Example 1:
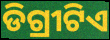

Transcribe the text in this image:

ଡିଗ୍ରୀଟିଏ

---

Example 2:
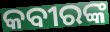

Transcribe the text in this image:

କବୀରଙ୍କ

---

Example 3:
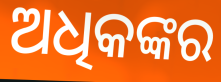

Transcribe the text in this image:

ଅଧିକଙ୍କର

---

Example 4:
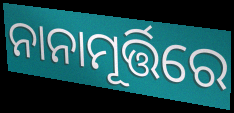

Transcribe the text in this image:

ନାନାମୂର୍ତ୍ତିରେ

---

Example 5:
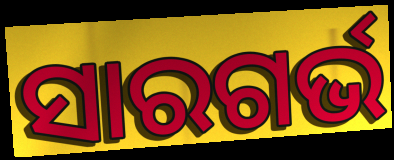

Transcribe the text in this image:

ସାରଗର୍ଭ